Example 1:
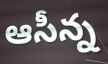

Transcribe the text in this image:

ఆసీన్న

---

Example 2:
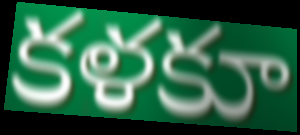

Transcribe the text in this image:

కళకూ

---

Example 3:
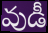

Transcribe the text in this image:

వుడీ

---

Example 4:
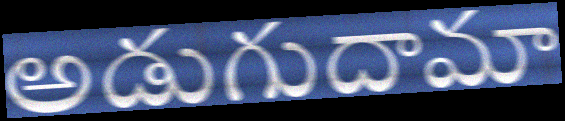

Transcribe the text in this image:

అడుగుదామా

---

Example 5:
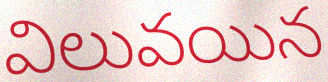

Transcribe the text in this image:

విలువయిన